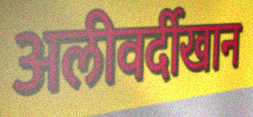
अलीवर्दीखान